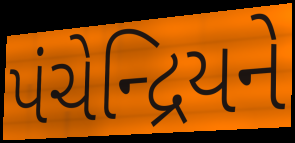
પંચેન્દ્રિયને